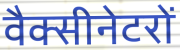
वैक्सीनेटरों